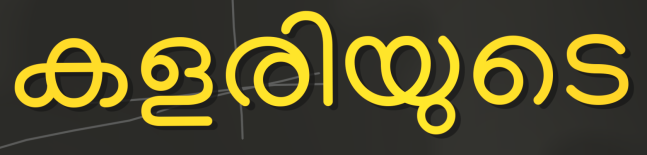
കളരിയുടെ